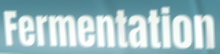
Fermentation